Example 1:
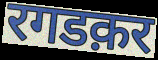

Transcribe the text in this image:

रगडक़र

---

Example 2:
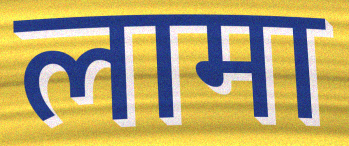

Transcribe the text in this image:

लामा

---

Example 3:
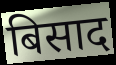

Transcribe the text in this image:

बिसाद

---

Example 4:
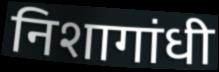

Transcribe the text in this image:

निशागांधी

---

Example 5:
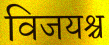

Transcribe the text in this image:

विजयश्च